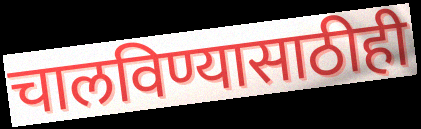
चालविण्यासाठीही